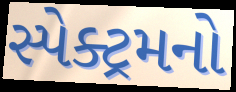
સ્પેક્ટ્રમનો